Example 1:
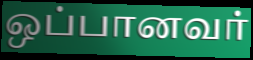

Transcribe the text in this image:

ஒப்பானவர்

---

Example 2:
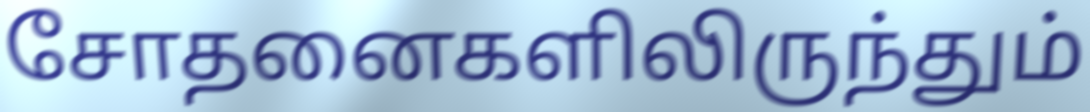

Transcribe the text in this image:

சோதனைகளிலிருந்தும்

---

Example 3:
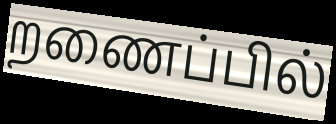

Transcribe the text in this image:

றணைப்பில்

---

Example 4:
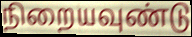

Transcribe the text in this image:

நிறையவுண்டு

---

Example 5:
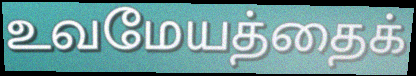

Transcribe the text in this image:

உவமேயத்தைக்